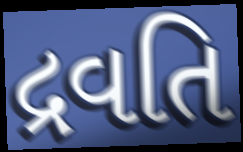
દ્રવતિ